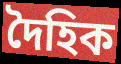
দৈহিক